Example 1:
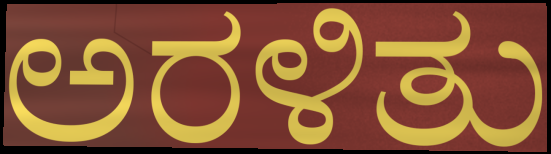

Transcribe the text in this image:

ಅರಳಿತು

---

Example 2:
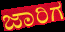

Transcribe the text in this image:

ಜಾರಿಗ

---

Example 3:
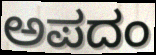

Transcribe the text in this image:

ಅಪದಂ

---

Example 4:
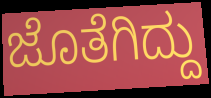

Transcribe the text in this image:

ಜೊತೆಗಿದ್ದು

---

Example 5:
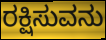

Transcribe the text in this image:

ರಕ್ಷಿಸುವನು